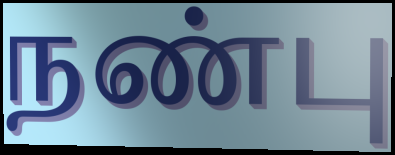
நண்பு